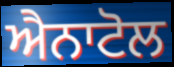
ਐਨਾਟੋਲ